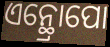
ଏନ୍ଥ୍ରୋପୋ